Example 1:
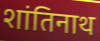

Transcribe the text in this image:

शांतिनाथ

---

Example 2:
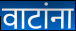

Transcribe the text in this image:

वाटांना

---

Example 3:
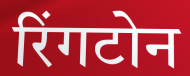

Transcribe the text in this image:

रिंगटोन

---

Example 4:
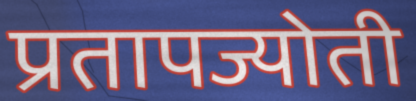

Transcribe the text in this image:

प्रतापज्योती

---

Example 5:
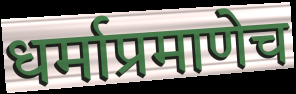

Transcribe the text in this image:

धर्माप्रमाणेच